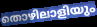
തൊഴിലാളിയും